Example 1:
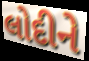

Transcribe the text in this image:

લોદીને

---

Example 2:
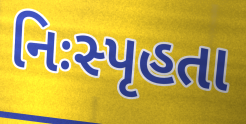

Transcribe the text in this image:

નિઃસ્પૃહતા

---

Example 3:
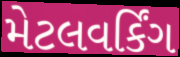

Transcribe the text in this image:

મેટલવર્કિંગ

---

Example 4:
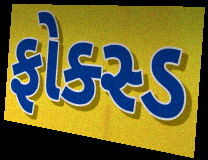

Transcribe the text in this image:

ફોક્સ્ડ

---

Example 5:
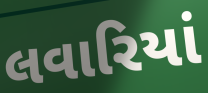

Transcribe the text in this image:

લવારિયાં